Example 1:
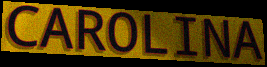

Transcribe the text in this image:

CAROLINA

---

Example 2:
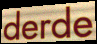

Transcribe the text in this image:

derde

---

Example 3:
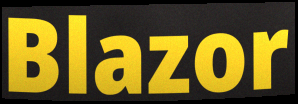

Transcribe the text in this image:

Blazor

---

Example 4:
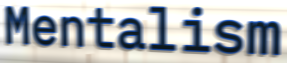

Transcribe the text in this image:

Mentalism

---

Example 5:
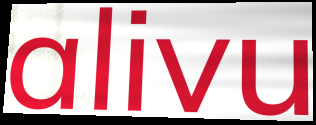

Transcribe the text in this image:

alivu